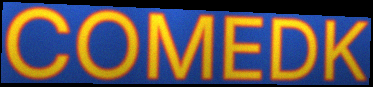
COMEDK